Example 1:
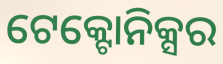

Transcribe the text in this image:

ଟେକ୍ଟୋନିକ୍ସର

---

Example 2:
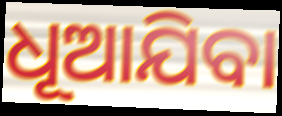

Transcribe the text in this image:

ଧୂଆଯିବା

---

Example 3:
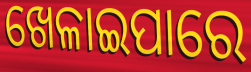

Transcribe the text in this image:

ଖେଳାଇପାରେ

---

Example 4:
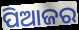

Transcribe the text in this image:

ପିଆଜର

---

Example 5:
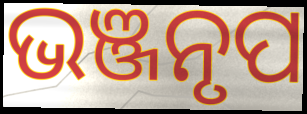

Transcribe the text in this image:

ଭଞ୍ଜନୃପ